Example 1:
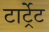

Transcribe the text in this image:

टार्ट्रेट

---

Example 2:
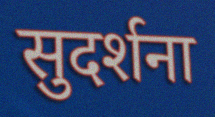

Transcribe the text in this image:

सुदर्शना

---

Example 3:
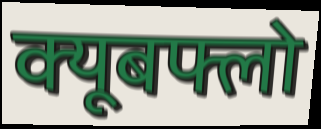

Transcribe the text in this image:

क्यूबफ्लो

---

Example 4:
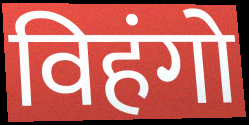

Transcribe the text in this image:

विहंगो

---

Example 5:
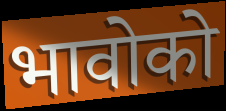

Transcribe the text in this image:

भावोको